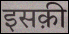
इसक़ी